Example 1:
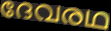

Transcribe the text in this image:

ദേവരഥ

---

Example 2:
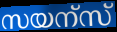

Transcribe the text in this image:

സയന്സ്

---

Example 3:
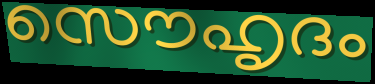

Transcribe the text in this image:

സൌഹൃദം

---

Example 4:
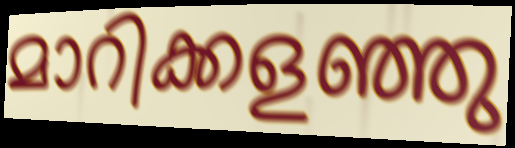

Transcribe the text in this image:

മാറിക്കളഞ്ഞു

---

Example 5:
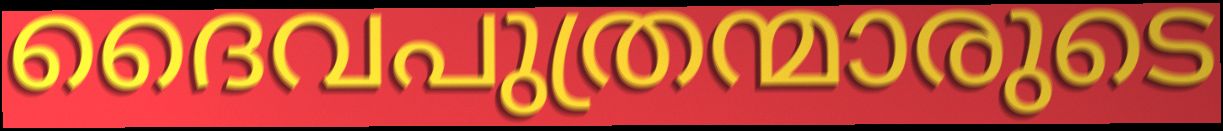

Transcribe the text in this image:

ദൈവപുത്രന്മാരുടെ